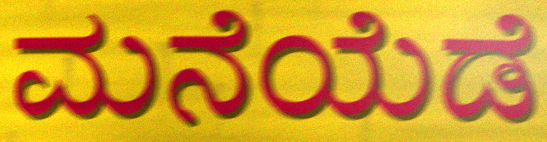
ಮನೆಯೆಡೆ